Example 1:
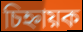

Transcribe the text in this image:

চিহ্নায়ক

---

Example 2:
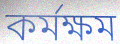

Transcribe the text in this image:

কৰ্মক্ষম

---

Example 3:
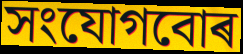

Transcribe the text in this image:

সংযোগবোৰ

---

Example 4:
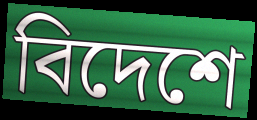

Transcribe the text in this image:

বিদেশে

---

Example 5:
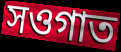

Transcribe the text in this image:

সওগাত